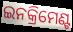
ଇନକ୍ରିମେଣ୍ଟ